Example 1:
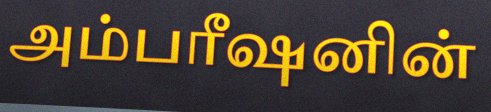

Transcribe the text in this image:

அம்பரீஷனின்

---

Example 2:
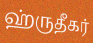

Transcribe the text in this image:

ஹ்ருதீகர்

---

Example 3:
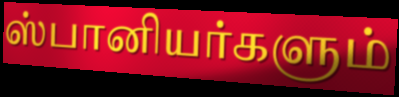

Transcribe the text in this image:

ஸ்பானியர்களும்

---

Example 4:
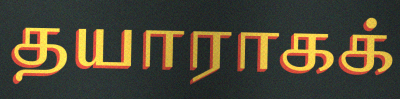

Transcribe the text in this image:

தயாராகக்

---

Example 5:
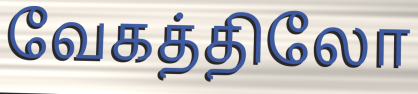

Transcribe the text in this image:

வேகத்திலோ